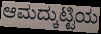
ಆಮದ್ಕುಟ್ಟಿಯ